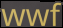
wwf